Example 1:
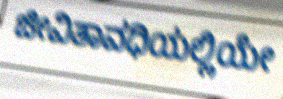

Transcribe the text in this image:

ಜೀವಿತಾವಧಿಯಲ್ಲಿಯೇ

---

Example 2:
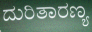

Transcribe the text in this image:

ದುರಿತಾರಣ್ಯ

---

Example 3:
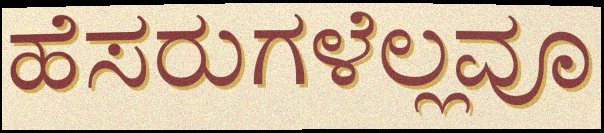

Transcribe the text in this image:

ಹೆಸರುಗಳೆಲ್ಲವೂ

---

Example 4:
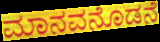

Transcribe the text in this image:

ಮಾನವನೊಡನೆ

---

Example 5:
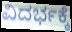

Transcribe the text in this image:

ವಿದರ್ಭಕ್ಕೆ